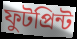
ফুটপ্রিন্ট